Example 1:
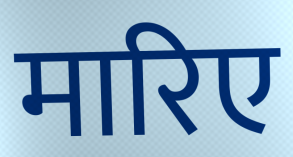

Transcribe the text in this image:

मारिए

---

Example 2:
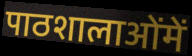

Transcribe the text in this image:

पाठशालाओंमें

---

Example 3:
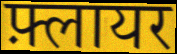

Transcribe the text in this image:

फ़्लायर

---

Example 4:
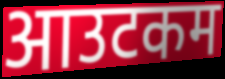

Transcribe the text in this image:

आउटकम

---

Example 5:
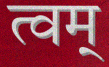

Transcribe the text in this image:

त्वम्